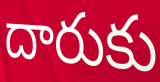
దారుకు